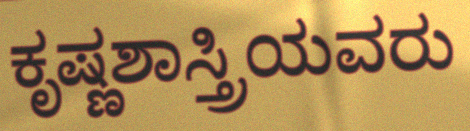
ಕೃಷ್ಣಶಾಸ್ತ್ರಿಯವರು